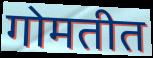
गोमतीत